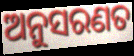
ଅନୁସରଣତ